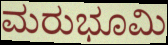
ಮರುಭೂಮಿ